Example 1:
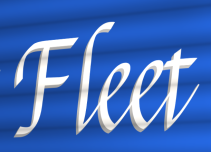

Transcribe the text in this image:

Fleet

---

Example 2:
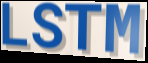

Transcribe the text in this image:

LSTM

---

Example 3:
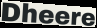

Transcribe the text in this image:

Dheere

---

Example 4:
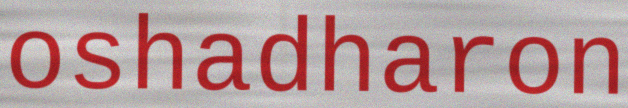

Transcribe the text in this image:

oshadharon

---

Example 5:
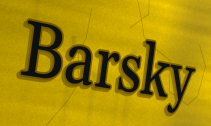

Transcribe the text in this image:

Barsky